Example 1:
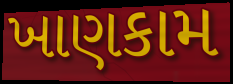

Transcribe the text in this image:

ખાણકામ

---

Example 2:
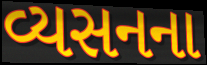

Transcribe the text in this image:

વ્યસનના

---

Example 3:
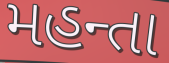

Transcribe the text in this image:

મહન્તા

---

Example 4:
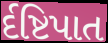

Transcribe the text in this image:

ર્દષ્ટિપાત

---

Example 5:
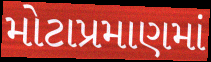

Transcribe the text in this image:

મોટાપ્રમાણમાં